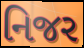
નિજર